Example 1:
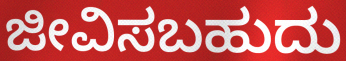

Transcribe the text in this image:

ಜೀವಿಸಬಹುದು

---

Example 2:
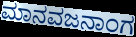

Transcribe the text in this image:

ಮಾನವಜನಾಂಗ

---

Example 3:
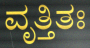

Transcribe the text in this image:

ವೃತ್ತಿತಃ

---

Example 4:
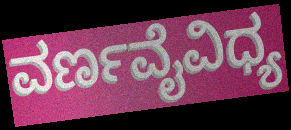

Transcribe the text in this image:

ವರ್ಣವೈವಿಧ್ಯ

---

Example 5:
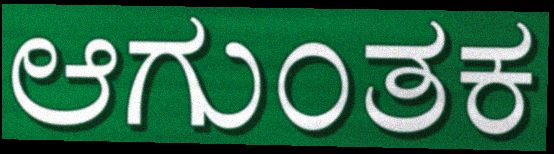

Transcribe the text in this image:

ಆಗುಂತಕ